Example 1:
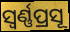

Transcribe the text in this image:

ସ୍ୱର୍ଣ୍ଣପ୍ରସୂ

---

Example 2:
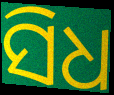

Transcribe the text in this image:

ସିଧ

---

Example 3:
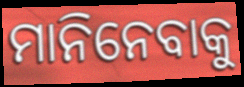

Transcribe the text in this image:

ମାନିନେବାକୁ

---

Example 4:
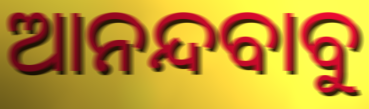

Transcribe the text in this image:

ଆନନ୍ଦବାବୁ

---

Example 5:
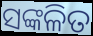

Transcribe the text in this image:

ସଙ୍କଳିତ